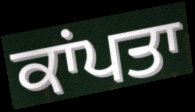
ਕਾਂਪਤਾ